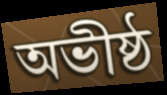
অভীষ্ঠ